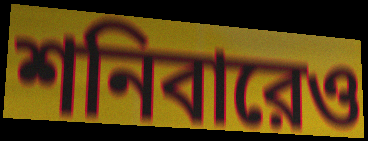
শনিবারেও